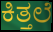
ಕಿತ್ತಲೆ